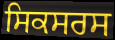
ਸਿਕਸਰਸ